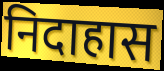
निदाहास